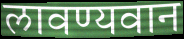
लावण्यवान